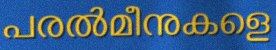
പരൽമീനുകളെ